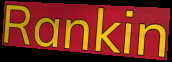
Rankin